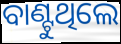
ବାଣ୍ଟୁଥିଲେ